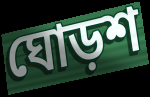
ঘোড়শ